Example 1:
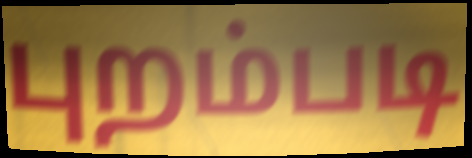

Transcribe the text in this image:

புறம்படி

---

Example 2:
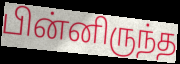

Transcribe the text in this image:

பின்னிருந்த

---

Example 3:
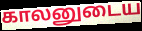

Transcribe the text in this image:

காலனுடைய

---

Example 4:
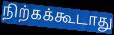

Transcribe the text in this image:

நிற்கக்கூடாது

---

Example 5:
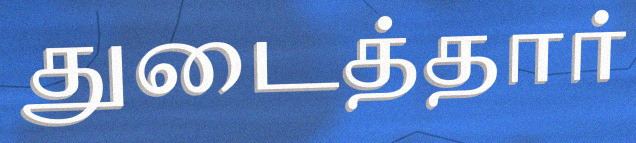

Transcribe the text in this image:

துடைத்தார்